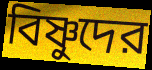
বিষ্ণুদের